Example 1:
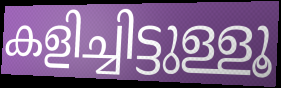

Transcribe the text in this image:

കളിച്ചിട്ടുള്ളൂ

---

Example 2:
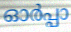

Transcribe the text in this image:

ഓർപ്പാ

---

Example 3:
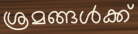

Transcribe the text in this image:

ശ്രമങ്ങൾക്ക്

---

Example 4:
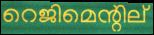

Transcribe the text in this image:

റെജിമെന്റില്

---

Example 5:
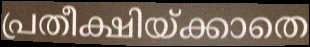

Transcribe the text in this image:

പ്രതീക്ഷിയ്ക്കാതെ